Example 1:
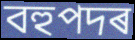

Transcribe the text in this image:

বহুপদৰ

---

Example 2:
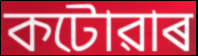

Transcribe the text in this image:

কটোৱাৰ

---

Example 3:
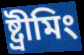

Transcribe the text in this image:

ষ্ট্ৰীমিং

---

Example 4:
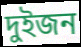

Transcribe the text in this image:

দুইজন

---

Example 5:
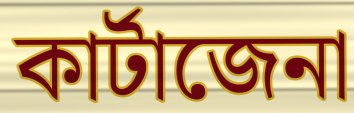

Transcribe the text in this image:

কাৰ্টাজেনা